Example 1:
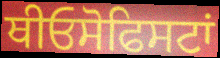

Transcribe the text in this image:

ਥੀਓਸੋਫਿਸਟਾਂ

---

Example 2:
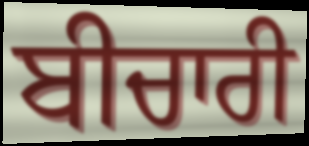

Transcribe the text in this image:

ਬੀਚਾਰੀ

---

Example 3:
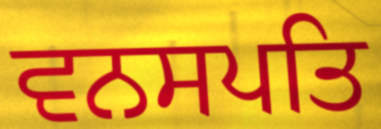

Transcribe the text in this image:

ਵਨਸਪਤਿ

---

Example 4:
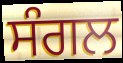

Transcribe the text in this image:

ਸੰਗਲ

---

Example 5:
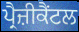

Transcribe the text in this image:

ਪ੍ਰੈਜ਼ੀਕੈਂਟਲ